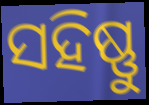
ସହିଷ୍ଣୁ